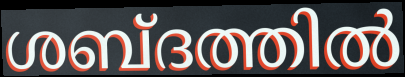
ശബ്ദത്തിൽ